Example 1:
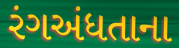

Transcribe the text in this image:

રંગઅંધતાના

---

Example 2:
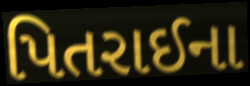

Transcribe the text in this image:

પિતરાઈના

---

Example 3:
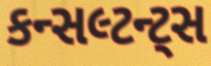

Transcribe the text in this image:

કન્સલ્ટન્ટ્સ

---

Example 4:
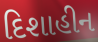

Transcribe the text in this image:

દિશાહીન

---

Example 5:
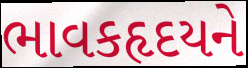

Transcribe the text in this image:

ભાવકહૃદયને